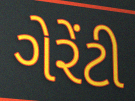
ગેરેંટી